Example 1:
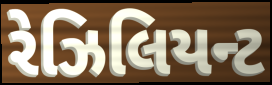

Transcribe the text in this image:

રેઝિલિયન્ટ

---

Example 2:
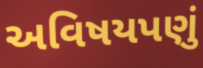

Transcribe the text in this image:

અવિષયપણું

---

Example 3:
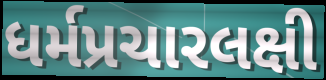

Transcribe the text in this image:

ધર્મપ્રચારલક્ષી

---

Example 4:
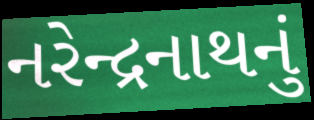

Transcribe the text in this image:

નરેન્દ્રનાથનું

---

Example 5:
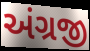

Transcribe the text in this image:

અંગ્રજી